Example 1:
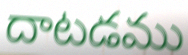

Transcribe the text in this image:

దాటడము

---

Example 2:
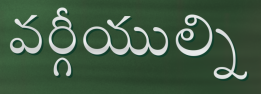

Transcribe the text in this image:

వర్గీయుల్ని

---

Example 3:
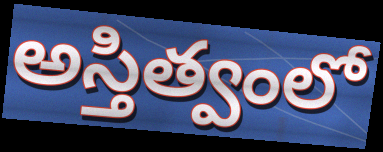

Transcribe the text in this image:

అస్తిత్వంలో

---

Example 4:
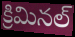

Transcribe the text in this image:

క్రిమినల్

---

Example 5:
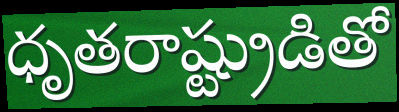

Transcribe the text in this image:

ధృతరాష్ట్రుడితో